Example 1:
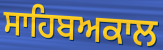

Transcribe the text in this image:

ਸਾਹਿਬਅਕਾਲ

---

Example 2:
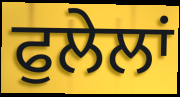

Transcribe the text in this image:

ਫੁਲੇਲਾਂ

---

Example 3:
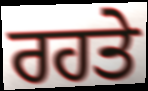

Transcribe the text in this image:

ਰਹਤੇ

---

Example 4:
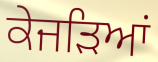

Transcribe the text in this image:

ਕੇਜੜਿਆਂ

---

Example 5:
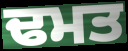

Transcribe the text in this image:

ਢਮਤ